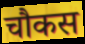
चौकस